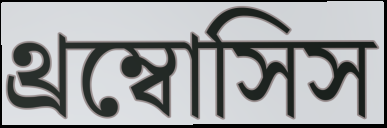
থ্রম্বোসিস